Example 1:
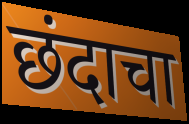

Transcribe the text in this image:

छंदाचा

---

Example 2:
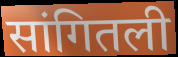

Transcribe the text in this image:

सांगितली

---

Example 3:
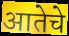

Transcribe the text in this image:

आतेचे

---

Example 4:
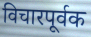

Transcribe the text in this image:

विचारपूर्वक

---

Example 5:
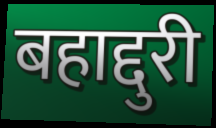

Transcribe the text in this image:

बहाद्दुरी